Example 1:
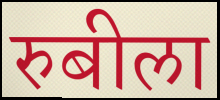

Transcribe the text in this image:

रुबीला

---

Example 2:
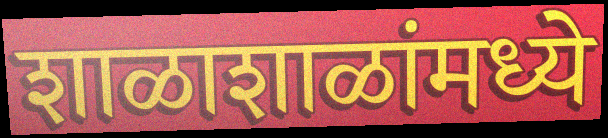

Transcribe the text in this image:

शाळाशाळांमध्ये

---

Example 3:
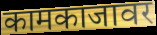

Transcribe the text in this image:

कामकाजावर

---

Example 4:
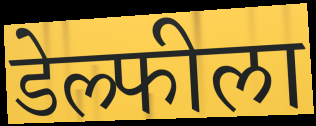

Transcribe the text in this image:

डेल्फीला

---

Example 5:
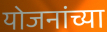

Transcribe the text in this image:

योजनांच्या